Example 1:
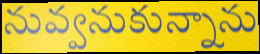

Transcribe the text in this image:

నువ్వనుకున్నాను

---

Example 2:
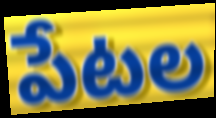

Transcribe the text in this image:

పేటల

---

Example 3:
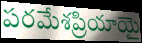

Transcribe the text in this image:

పరమేశప్రియాయై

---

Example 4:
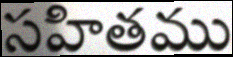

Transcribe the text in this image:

సహితము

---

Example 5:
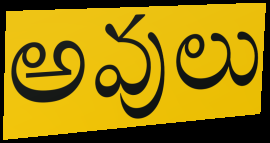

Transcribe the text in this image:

అవులు